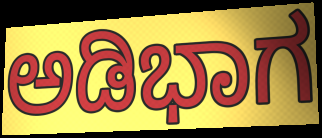
ಅಡಿಭಾಗ